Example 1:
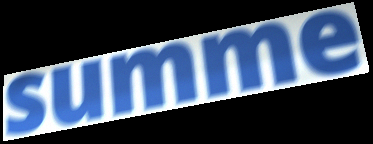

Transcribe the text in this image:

summe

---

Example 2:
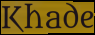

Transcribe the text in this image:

Khade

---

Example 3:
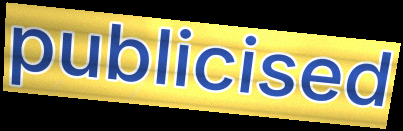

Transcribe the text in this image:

publicised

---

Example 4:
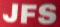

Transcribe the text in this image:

JFS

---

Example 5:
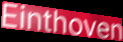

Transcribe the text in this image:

Einthoven